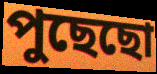
পুছেছো